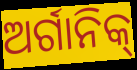
ଅର୍ଗାନିକ୍